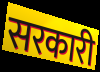
सरकारी